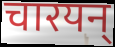
चारयन्